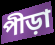
পীড়া